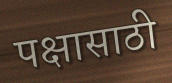
पक्षासाठी